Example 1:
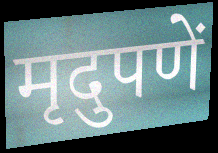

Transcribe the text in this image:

मृदुपणें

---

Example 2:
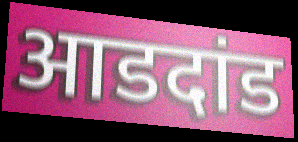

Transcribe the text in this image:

आडदांड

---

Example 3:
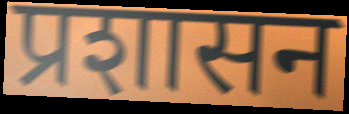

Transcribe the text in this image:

प्रशासन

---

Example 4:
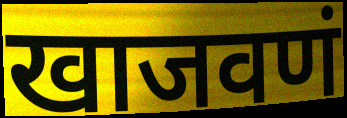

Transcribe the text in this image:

खाजवणं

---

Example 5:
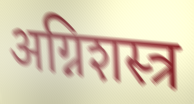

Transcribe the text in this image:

अग्निशस्त्र